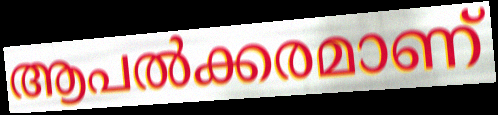
ആപൽക്കരമാണ്